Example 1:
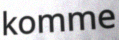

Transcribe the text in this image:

komme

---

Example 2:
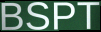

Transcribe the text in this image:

BSPT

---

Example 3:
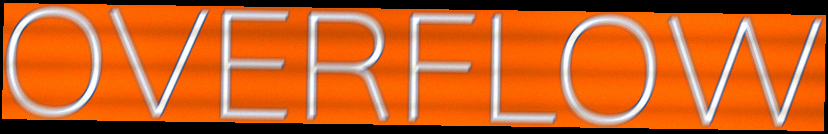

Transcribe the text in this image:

OVERFLOW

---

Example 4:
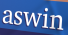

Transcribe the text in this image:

aswin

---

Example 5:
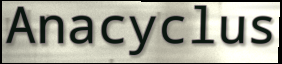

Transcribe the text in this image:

Anacyclus